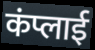
कंप्लाई